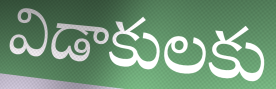
విడాకులకు